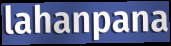
lahanpana